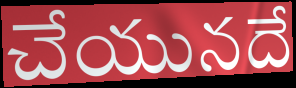
చేయునదే